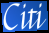
Citi